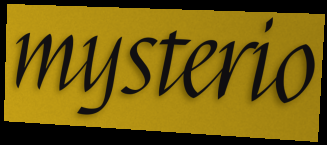
mysterio